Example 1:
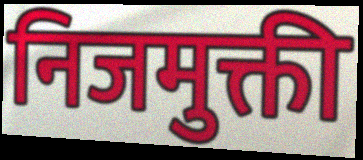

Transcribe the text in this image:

निजमुक्ती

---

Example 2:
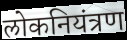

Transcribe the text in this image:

लोकनियंत्रण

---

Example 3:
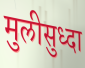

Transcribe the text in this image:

मुलीसुध्दा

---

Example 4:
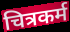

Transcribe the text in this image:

चित्रकर्म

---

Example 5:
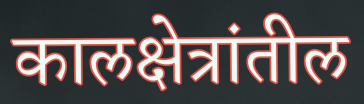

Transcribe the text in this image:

कालक्षेत्रांतील